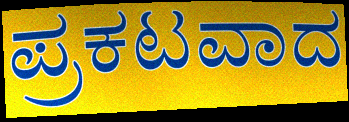
ಪ್ರಕಟವಾದ